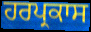
ਹਰਪ੍ਰਕਾਸ